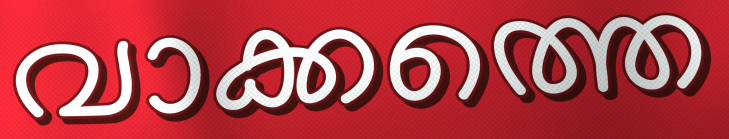
വാക്കത്തെ